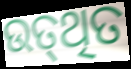
ଉତ୍‍ଥିତ